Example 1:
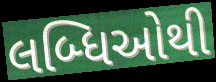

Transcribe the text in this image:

લબ્ધિઓથી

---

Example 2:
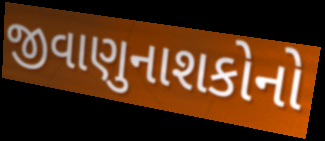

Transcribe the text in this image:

જીવાણુનાશકોનો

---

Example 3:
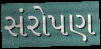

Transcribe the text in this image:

સંરોપણ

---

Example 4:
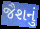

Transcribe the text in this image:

જૈશનું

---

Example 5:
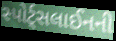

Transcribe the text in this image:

સ્પોર્ટ્સલાઈનની